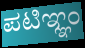
ಪಟಿಞ್ಞಂ